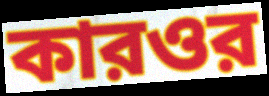
কারওর